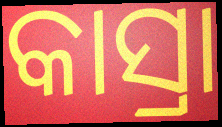
କାସ୍ରା